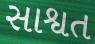
સાશ્વત